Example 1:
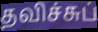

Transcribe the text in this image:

தவிச்சுப்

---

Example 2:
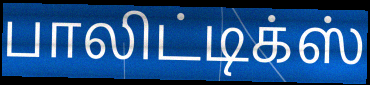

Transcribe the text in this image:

பாலிட்டிக்ஸ்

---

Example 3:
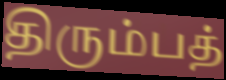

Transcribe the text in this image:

திரும்பத்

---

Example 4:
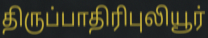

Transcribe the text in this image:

திருப்பாதிரிபுலியூர்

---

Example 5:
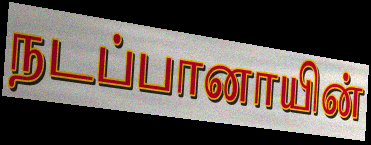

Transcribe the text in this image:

நடப்பானாயின்